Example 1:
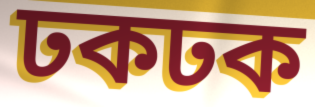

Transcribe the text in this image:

ঢকঢক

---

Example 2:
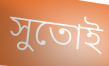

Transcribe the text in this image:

সুতোই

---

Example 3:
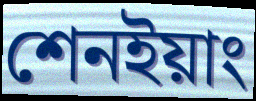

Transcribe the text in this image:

শেনইয়াং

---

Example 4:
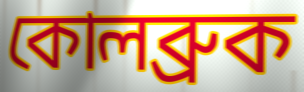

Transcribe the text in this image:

কোলব্রুক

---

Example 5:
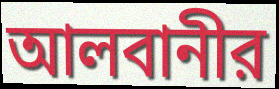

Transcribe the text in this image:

আলবানীর